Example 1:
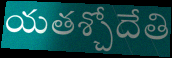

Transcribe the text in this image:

యతశ్చోదేతి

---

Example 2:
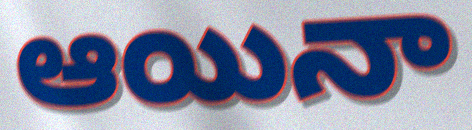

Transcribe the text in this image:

ఆయినా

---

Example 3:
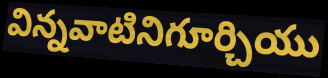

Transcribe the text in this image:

విన్నవాటినిగూర్చియు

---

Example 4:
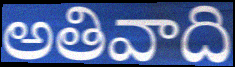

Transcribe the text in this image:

అతివాది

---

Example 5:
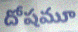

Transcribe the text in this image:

దోషమూ